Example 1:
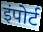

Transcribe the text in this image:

इंपोर्ट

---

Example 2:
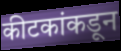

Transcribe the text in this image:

कीटकांकडून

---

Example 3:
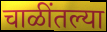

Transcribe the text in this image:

चाळींतल्या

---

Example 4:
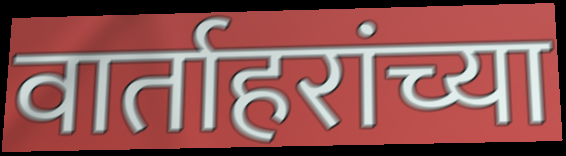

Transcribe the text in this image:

वार्ताहरांच्या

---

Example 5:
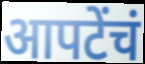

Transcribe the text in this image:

आपटेंचं